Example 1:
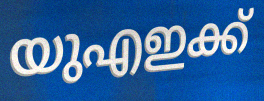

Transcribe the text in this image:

യുഎഇക്ക്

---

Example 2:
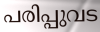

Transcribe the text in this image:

പരിപ്പുവട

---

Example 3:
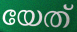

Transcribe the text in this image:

യേത്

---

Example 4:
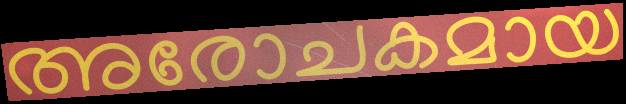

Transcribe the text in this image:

അരോചകമായ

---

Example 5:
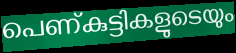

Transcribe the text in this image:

പെണ്കുട്ടികളുടെയും